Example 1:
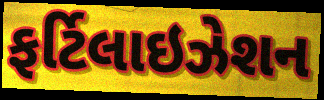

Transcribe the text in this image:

ફર્ટિલાઇઝેશન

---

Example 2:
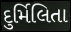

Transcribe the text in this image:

દુર્મિલિતા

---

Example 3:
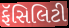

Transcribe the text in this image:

ફૅસિલિટી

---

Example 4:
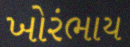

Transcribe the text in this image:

ખોરંભાય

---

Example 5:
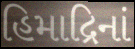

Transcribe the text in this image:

હિમાદ્રિનાં